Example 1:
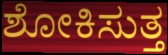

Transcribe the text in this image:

ಶೋಕಿಸುತ್ತ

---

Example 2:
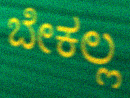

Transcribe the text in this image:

ಬೇಕಲ್ಲ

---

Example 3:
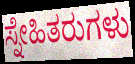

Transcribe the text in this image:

ಸ್ನೇಹಿತರುಗಳು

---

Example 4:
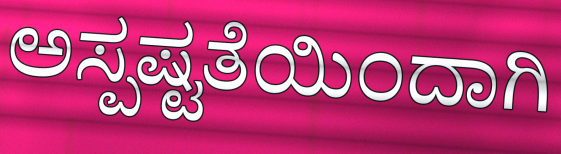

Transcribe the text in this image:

ಅಸ್ಪಷ್ಟತೆಯಿಂದಾಗಿ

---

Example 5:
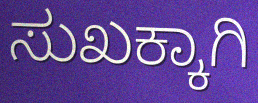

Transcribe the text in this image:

ಸುಖಕ್ಕಾಗಿ